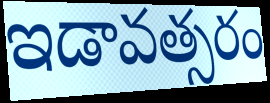
ఇడావత్సరం